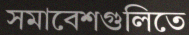
সমাবেশগুলিতে